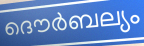
ദൌർബല്യം